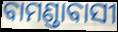
ବାମଣ୍ଡାବାସୀ